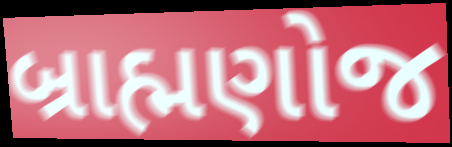
બ્રાહ્મણોજ